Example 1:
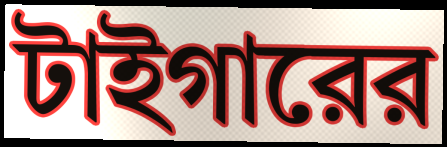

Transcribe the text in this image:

টাইগারের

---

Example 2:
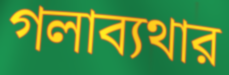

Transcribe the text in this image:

গলাব্যথার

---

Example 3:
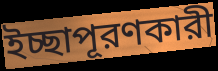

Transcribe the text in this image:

ইচ্ছাপূরণকারী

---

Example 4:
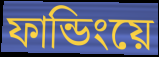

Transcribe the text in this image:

ফান্ডিংয়ে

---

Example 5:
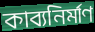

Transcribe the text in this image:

কাব্যনির্মাণ